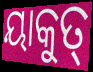
ୟାକୁତ୍